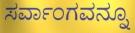
ಸರ್ವಾಂಗವನ್ನೂ